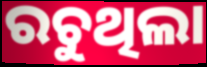
ରଚୁଥିଲା